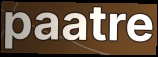
paatre